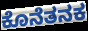
ಕೊನೆತನಕ